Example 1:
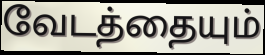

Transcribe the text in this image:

வேடத்தையும்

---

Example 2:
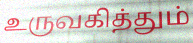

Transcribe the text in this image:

உருவகித்தும்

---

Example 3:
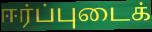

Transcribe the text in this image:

ஈர்ப்புடைக்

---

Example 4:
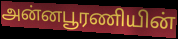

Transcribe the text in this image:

அன்னபூரணியின்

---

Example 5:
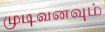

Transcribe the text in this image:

முடிவனவும்